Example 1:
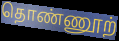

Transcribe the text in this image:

தொண்ணூற்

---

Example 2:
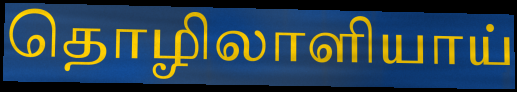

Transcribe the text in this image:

தொழிலாளியாய்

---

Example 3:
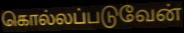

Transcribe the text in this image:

கொல்லப்படுவேன்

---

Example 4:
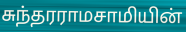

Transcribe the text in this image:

சுந்தரராமசாமியின்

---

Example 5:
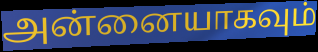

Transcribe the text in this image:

அன்னையாகவும்